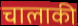
चालाकी